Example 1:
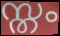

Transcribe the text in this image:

സ്തം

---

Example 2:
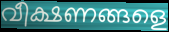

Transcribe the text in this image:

വീക്ഷണങ്ങളെ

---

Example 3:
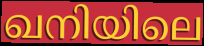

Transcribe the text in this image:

ഖനിയിലെ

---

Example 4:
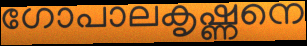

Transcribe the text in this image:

ഗോപാലകൃഷ്ണനെ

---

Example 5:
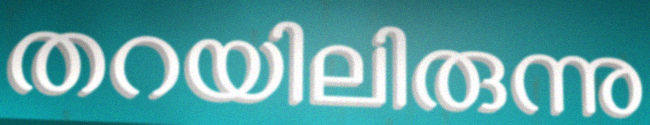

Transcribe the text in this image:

തറയിലിരുന്നു